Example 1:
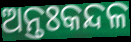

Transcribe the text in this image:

ଅନ୍ତଃକନ୍ଦଳ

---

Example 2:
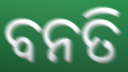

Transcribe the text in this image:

ବନତି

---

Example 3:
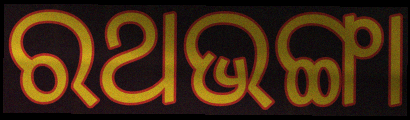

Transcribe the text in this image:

ରଥଭଙ୍ଗା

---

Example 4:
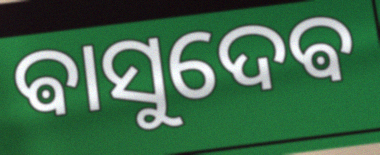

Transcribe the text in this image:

ଵାସୁଦେଵ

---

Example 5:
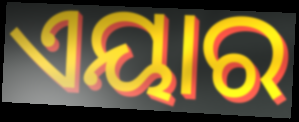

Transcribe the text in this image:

ଏୟାର